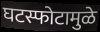
घटस्फोटामुळे